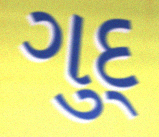
ગુદ્